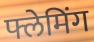
फ्लेमिंग